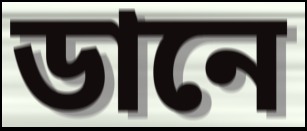
ডানে